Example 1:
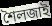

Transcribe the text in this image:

শৈলজাই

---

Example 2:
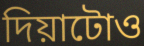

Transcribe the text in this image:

দিয়াটোও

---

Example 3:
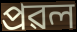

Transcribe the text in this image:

প্ৰৱল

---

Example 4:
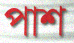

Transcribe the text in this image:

পাশ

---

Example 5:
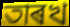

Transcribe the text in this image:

তাৰখ